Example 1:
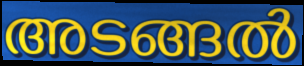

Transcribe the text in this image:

അടങ്ങൽ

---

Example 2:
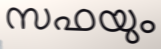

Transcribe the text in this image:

സഫയും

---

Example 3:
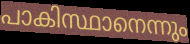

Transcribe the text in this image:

പാകിസ്ഥാനെന്നും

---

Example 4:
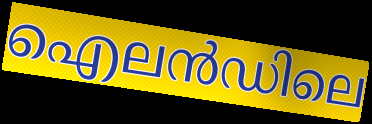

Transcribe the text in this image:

ഐലൻഡിലെ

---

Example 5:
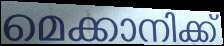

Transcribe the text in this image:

മെക്കാനിക്ക്